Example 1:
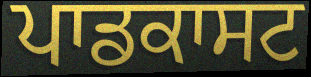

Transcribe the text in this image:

ਪਾਡਕਾਸਟ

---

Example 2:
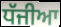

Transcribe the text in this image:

ਧੱਜੀਆ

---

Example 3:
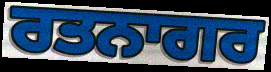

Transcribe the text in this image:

ਰਤਨਾਗਰ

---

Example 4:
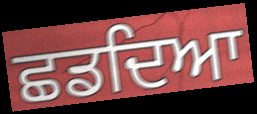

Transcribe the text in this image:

ਛਡਦਿਆ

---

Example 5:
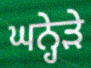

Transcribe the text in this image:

ਘਨ੍ਹੇੜੇ